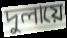
দুলায়ে